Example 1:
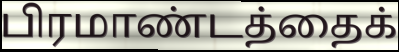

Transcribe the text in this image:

பிரமாண்டத்தைக்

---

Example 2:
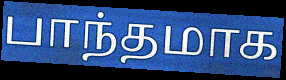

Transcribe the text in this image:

பாந்தமாக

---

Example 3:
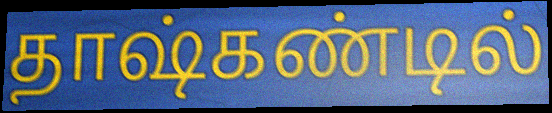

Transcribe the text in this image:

தாஷ்கண்டில்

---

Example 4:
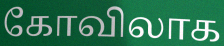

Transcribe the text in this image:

கோவிலாக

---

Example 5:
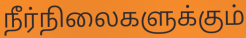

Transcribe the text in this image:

நீர்நிலைகளுக்கும்